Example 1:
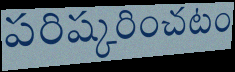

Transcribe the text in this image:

పరిష్కరించటం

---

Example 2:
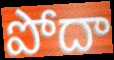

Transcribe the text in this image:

పోదా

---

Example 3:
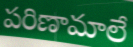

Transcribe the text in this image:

పరిణామాలే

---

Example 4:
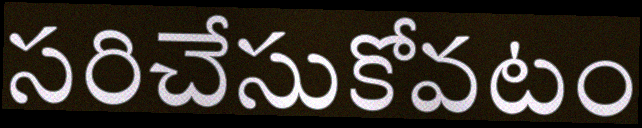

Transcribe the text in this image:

సరిచేసుకోవటం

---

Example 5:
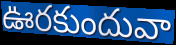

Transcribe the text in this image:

ఊరకుందువా